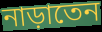
নাড়াতেন